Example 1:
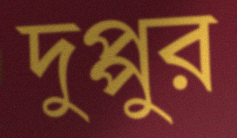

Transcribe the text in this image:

দুপ্পুর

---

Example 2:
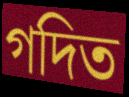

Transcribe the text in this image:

গদিত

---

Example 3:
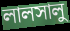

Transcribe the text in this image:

লালসালু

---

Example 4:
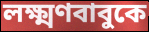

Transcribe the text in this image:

লক্ষ্মণবাবুকে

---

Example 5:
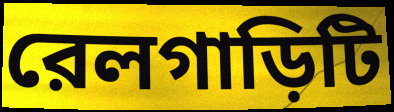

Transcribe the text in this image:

রেলগাড়িটি